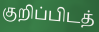
குறிப்பிடத்